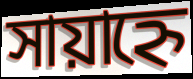
সায়াহ্নে